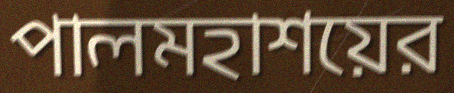
পালমহাশয়ের